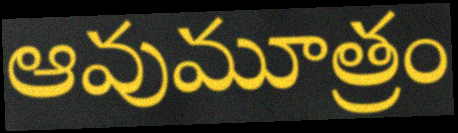
ఆవుమూత్రం